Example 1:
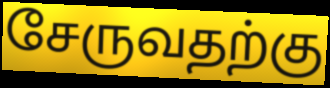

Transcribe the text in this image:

சேருவதற்கு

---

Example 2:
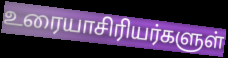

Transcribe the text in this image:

உரையாசிரியர்களுள்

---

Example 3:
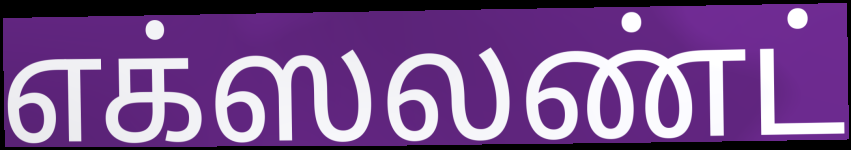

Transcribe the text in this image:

எக்ஸலண்ட்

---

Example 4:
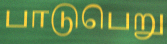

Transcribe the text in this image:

பாடுபெறு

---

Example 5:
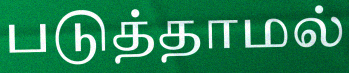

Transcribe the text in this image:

படுத்தாமல்